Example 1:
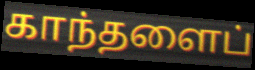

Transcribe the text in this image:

காந்தளைப்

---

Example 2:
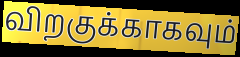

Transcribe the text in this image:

விறகுக்காகவும்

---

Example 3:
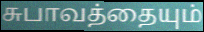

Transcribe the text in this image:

சுபாவத்தையும்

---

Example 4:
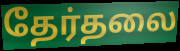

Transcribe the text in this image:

தேர்தலை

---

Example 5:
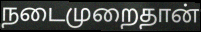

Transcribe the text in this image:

நடைமுறைதான்